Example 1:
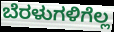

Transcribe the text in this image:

ಬೆರಳುಗಳಿಗೆಲ್ಲ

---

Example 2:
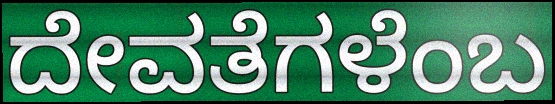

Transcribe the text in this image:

ದೇವತೆಗಳೆಂಬ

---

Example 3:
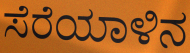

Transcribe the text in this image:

ಸೆರೆಯಾಳಿನ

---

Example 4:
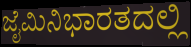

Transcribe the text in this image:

ಜೈಮಿನಿಭಾರತದಲ್ಲಿ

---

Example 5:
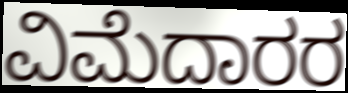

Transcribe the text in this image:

ವಿಮೆದಾರರ